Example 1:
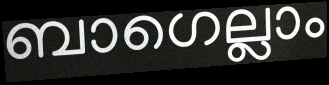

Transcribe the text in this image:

ബാഗെല്ലാം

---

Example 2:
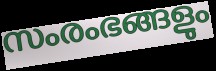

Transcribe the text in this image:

സംരംഭങ്ങളും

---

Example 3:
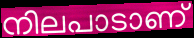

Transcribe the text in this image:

നിലപാടാണ്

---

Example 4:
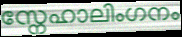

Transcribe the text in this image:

സ്നേഹാലിംഗനം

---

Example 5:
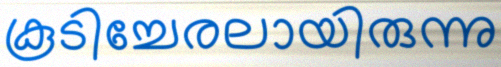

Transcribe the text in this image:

കൂടിച്ചേരലായിരുന്നു